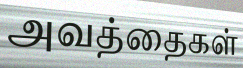
அவத்தைகள்